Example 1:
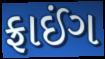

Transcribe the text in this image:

ફ્રાઈંગ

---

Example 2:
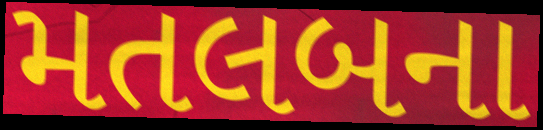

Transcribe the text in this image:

મતલબના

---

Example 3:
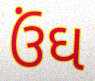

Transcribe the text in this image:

ઉંઘ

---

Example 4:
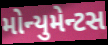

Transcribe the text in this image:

મોન્યુમેન્ટસ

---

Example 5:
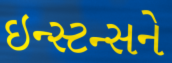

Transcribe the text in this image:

ઇન્સ્ટન્સને